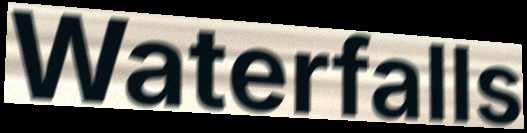
Waterfalls